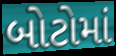
બોટોમાં